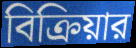
বিক্রিয়ার